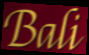
Bali